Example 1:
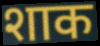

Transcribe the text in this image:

शाक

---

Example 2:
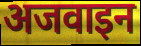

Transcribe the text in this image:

अजवाइन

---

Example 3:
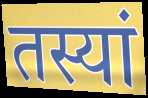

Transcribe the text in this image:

तस्यां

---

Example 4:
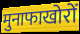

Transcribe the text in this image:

मुनाफाखोरों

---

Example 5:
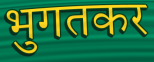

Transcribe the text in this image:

भुगतकर